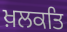
ਖ਼ਲਕਤਿ